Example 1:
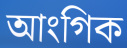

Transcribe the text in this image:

আংগিক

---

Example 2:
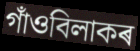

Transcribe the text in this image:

গাঁওবিলাকৰ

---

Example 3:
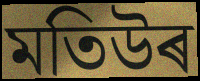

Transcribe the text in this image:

মতিউৰ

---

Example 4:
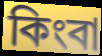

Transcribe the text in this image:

কিংবা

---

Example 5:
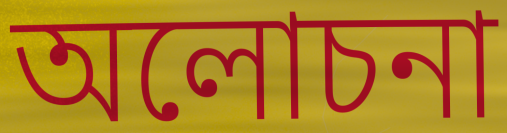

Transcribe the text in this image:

অলোচনা